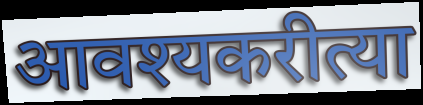
आवश्यकरीत्या